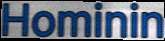
Hominin